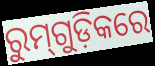
ରୁମ୍‌ଗୁଡ଼ିକରେ